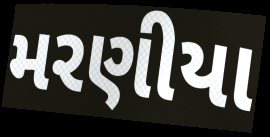
મરણીયા